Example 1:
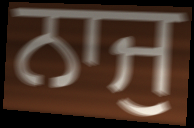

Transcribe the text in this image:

ਨਾਜੁ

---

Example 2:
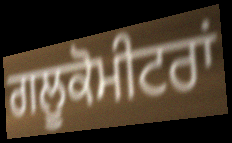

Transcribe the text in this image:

ਗਲੂਕੋਮੀਟਰਾਂ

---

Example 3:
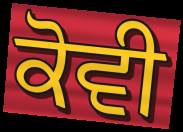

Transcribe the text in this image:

ਕੋਵੀ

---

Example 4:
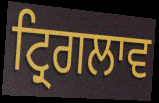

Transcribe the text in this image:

ਟ੍ਰਿਗਲਾਵ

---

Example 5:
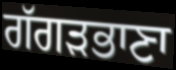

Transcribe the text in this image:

ਗੱਗੜਭਾਣਾ